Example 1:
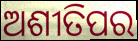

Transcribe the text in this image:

ଅଶୀତିପର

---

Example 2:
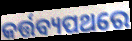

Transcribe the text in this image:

କର୍ତ୍ତବ୍ୟପଥରେ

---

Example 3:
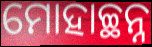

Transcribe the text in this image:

ମୋହାଚ୍ଛନ୍ନ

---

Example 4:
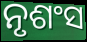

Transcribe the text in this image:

ନୃଶଂସ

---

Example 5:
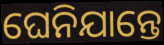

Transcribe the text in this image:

ଘେନିଯାନ୍ତେ